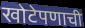
खोटेपणाची